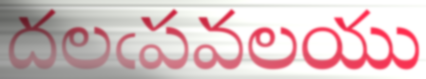
దలఁపవలయు